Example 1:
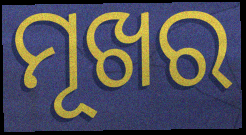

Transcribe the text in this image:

ମୂଖର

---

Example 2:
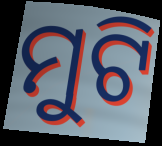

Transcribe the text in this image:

ମୁଟି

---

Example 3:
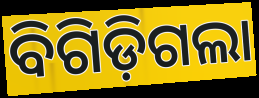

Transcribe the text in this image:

ବିଗିଡ଼ିଗଲା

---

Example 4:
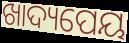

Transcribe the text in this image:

ଖାଦ୍ୟପେୟ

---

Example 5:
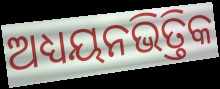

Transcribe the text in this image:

ଅଧ୍ୟୟନଭିତ୍ତିକ